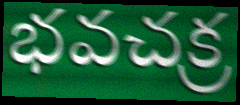
భవచక్ర